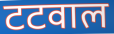
टटवाल